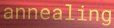
annealing